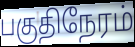
பகுதிநேரம்